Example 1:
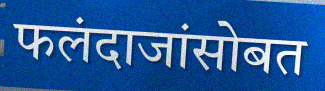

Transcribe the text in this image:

फलंदाजांसोबत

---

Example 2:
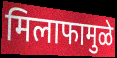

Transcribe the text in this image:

मिलाफामुळे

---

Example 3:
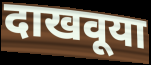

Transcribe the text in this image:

दाखवूया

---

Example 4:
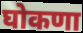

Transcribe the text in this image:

घोकणा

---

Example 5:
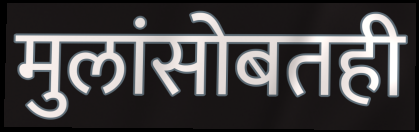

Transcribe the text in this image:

मुलांसोबतही